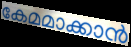
കേമമാക്കാൻ